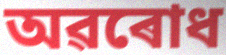
অৱৰোধ